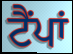
ਟੈਂਪਾਂ